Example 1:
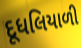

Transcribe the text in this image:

દૂધલિયાળી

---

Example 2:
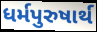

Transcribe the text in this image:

ધર્મપુરુષાર્થ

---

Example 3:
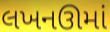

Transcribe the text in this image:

લખનઊમાં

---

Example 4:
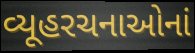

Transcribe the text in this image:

વ્યૂહરચનાઓનાં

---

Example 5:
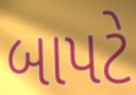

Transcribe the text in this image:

બાપટે